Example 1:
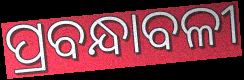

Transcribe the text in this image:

ପ୍ରବନ୍ଧାବଳୀ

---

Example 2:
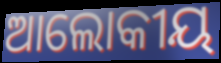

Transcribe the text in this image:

ଆଲୋକୀୟ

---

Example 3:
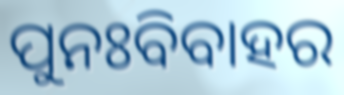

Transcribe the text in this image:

ପୁନଃବିବାହର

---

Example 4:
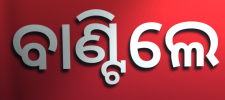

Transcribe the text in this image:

ବାଣ୍ଟିଲେ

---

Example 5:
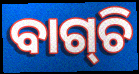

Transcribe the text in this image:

ବାଗ୍‌ଚି